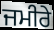
ਜਮੀਰੇ